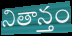
నితాన్తం